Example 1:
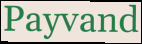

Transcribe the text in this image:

Payvand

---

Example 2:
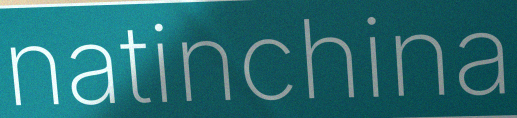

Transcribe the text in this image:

natinchina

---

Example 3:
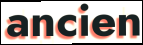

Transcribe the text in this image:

ancien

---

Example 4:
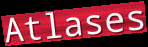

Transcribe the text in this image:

Atlases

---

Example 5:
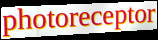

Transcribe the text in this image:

photoreceptor